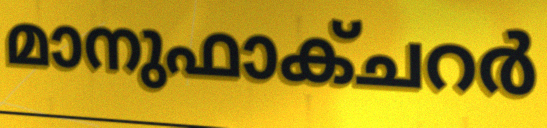
മാനുഫാക്ചറർ